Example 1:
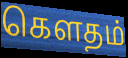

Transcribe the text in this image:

கௌதம்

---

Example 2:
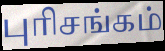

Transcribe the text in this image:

புரிசங்கம்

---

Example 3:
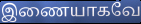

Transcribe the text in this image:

இணையாகவே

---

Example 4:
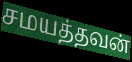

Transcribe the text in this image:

சமயத்தவன்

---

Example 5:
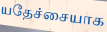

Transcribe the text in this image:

யதேச்சையாக